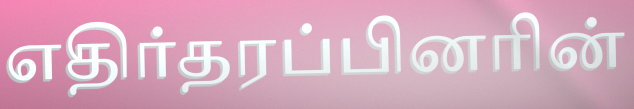
எதிர்தரப்பினரின்